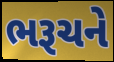
ભરૂચને